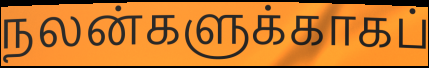
நலன்களுக்காகப்